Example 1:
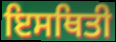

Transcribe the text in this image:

ਇਸਥਿਤੀ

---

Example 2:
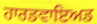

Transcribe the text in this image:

ਹਾਰਡਵਾਇਅਡ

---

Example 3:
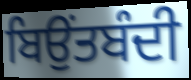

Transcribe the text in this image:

ਬਿਉਂਤਬੰਦੀ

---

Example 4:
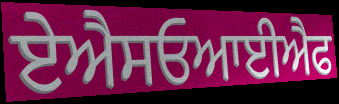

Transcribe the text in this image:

ਏਐਸਓਆਈਐਫ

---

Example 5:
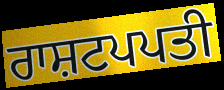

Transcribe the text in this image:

ਰਾਸ਼ਟਪਪਤੀ